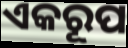
ଏକରୂପ